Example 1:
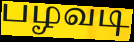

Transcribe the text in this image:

பழவடி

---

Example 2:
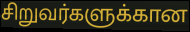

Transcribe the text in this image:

சிறுவர்களுக்கான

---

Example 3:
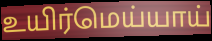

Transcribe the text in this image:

உயிர்மெய்யாய்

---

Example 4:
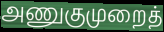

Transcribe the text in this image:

அணுகுமுறைத்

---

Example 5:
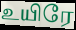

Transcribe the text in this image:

உயிரே